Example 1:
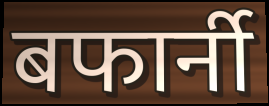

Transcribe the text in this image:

बफार्नी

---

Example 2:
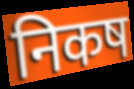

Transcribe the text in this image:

निकष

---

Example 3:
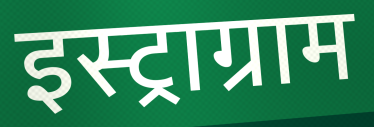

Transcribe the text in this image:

इस्ट्राग्राम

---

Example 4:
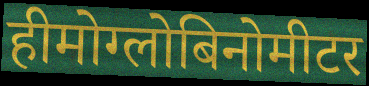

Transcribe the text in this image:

हीमोग्लोबिनोमीटर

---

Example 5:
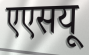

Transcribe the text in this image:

एएसयू